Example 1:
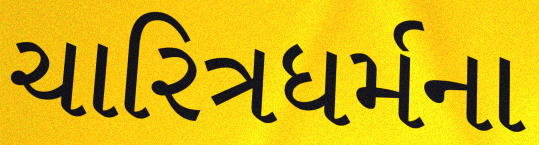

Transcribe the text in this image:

ચારિત્રધર્મના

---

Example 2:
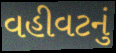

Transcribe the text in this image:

વહીવટનું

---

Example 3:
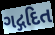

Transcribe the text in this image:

ગદ્ગદિત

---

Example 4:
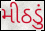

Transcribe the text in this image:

મીઠડું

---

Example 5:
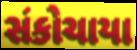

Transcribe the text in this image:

સંકોચાયા